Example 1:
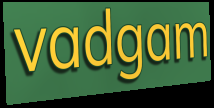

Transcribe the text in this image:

vadgam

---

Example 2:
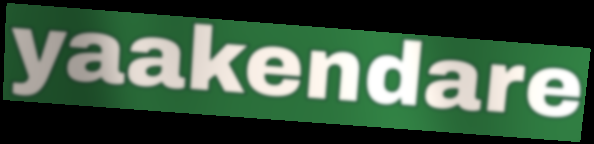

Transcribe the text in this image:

yaakendare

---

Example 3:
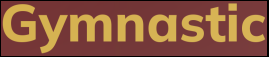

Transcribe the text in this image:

Gymnastic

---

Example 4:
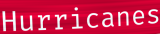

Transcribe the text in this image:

Hurricanes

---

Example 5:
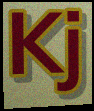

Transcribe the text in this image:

Kj